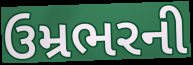
ઉમ્રભરની